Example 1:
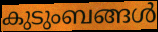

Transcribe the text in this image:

കുടുംബങ്ങൾ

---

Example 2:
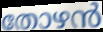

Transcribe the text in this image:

തോഴൻ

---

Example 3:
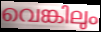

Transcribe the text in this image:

വെങ്കിലും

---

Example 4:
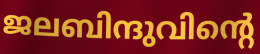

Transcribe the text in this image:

ജലബിന്ദുവിന്റെ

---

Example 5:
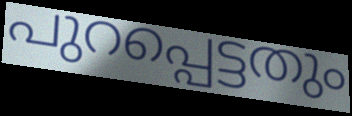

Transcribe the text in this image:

പുറപ്പെട്ടതും